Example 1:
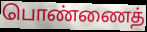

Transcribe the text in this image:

பொண்ணைத்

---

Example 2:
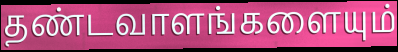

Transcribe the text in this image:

தண்டவாளங்களையும்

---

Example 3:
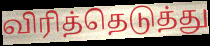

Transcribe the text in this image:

விரித்தெடுத்து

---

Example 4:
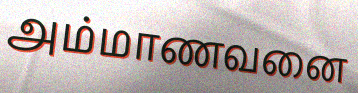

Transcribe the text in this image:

அம்மாணவனை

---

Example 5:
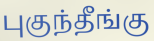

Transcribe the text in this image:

புகுந்தீங்கு